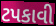
ટપકાવી